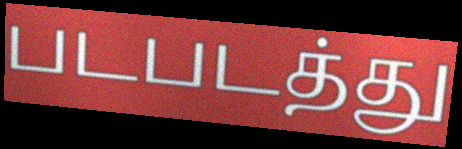
படபடத்து